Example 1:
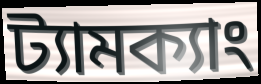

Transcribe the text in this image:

ট্যামক্যাং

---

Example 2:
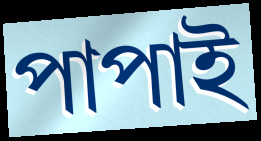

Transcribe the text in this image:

পাপাই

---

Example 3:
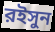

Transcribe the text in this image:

রইসুন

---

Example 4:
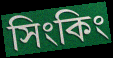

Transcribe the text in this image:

সিংকিং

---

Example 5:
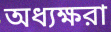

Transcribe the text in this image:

অধ্যক্ষরা